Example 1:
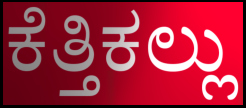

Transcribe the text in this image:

ಕೆತ್ತಿಕಲ್ಲು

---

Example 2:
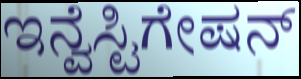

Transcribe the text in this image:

ಇನ್ವೆಸ್ಟಿಗೇಷನ್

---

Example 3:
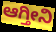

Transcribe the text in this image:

ಆಗ್ತೀನಿ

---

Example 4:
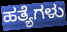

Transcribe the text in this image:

ಹತ್ಯೆಗಳು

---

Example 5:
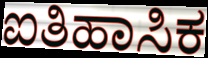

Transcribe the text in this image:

ಐತಿಹಾಸಿಕ